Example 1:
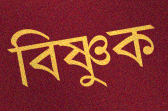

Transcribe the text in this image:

বিষ্ণুক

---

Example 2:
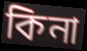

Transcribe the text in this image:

কিনা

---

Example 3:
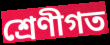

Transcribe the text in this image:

শ্ৰেণীগত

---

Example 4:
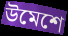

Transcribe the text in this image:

উমেশে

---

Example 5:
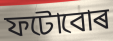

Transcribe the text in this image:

ফটোবোৰ